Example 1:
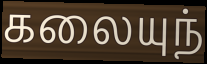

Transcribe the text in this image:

கலையுந்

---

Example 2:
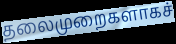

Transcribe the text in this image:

தலைமுறைகளாகச்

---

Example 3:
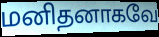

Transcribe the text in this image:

மனிதனாகவே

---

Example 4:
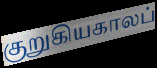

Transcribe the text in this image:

குறுகியகாலப்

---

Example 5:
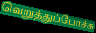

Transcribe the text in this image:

வெறுத்துப்போச்சு